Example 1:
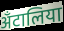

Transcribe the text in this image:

अँटालिया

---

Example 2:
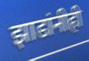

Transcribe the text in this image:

झाडांनीही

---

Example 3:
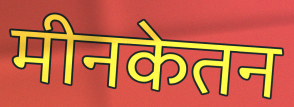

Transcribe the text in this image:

मीनकेतन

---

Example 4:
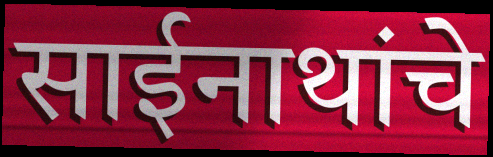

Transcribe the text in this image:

साईनाथांचे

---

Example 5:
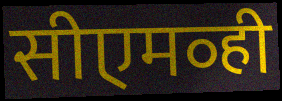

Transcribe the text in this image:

सीएमव्ही